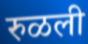
रुळली